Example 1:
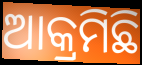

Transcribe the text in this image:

ଆକ୍ରମିଛି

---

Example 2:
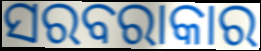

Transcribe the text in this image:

ସରବରାକାର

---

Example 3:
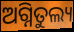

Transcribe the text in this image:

ଅଗ୍ନିତୁଲ୍ୟ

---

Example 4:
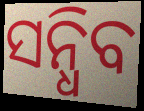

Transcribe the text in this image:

ସନ୍ଧିବ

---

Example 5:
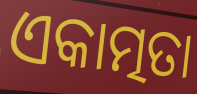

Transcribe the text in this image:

ଏକାତ୍ମତା